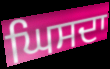
ਘਿਸਦਾ